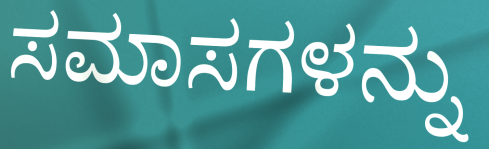
ಸಮಾಸಗಳನ್ನು